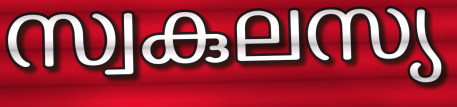
സ്വകുലസ്യ